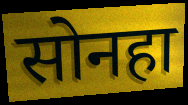
सोनहा